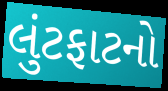
લુંટફાટનો